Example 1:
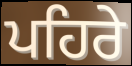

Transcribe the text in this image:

ਪਹਿਰੇ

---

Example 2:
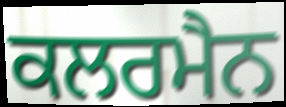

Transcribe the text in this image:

ਕਲਰਮੈਨ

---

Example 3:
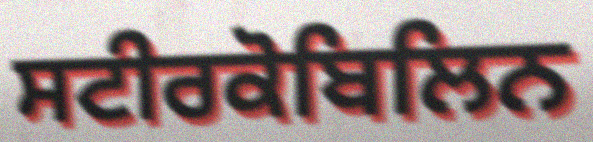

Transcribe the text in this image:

ਸਟੀਰਕੋਬਿਲਿਨ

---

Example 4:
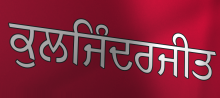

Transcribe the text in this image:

ਕੁਲਜਿੰਦਰਜੀਤ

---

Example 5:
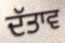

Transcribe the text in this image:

ਦੱਤਾਵ